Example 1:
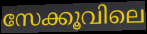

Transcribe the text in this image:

സേക്കൂവിലെ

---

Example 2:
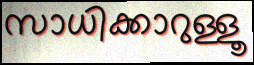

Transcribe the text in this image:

സാധിക്കാറുള്ളൂ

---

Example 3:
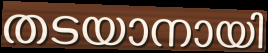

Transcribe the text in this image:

തടയാനായി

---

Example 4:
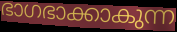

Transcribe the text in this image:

ഭാഗഭാക്കാകുന്ന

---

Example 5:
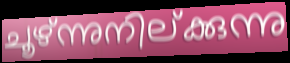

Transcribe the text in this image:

ചൂഴ്ന്നുനില്ക്കുന്നു